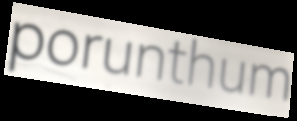
porunthum